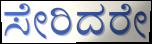
ಸೇರಿದರೇ